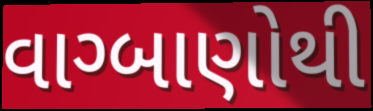
વાગ્બાણોથી